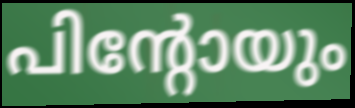
പിന്റോയും